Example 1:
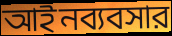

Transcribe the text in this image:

আইনব্যবসার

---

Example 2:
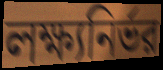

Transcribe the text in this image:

লক্ষ্যনির্ভর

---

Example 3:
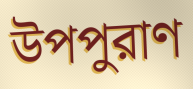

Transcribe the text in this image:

উপপুরাণ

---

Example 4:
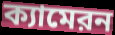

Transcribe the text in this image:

ক্যামেরন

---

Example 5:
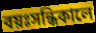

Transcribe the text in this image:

বয়ঃসন্ধিকালে